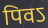
पिवऽ